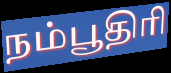
நம்பூதிரி